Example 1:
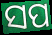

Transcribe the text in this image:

ସପ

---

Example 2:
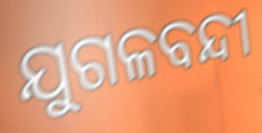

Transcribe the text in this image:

ଯୁଗଳବନ୍ଦୀ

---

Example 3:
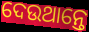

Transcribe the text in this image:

ଦେଉଥାନ୍ତେ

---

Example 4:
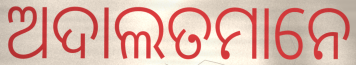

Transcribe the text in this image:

ଅଦାଲତମାନେ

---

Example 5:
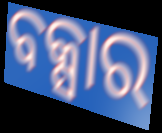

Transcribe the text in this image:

ବକ୍ସାର